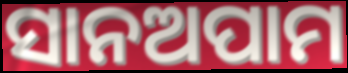
ସାନଅପାମ